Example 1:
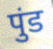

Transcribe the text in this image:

पुंड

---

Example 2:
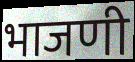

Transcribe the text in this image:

भाजणी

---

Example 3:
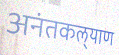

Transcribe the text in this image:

अनंतकल्याण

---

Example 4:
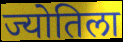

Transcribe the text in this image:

ज्योतिला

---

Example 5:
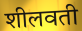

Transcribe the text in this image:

शीलवती